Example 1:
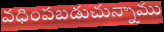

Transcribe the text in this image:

వధింపబడుచున్నాము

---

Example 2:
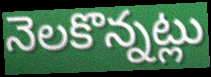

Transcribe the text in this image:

నెలకొన్నట్లు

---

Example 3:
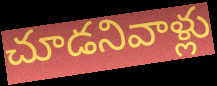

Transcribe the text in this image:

చూడనివాళ్లు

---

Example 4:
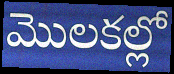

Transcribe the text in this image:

మొలకల్లో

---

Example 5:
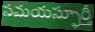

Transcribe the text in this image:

సమయస్ఫూర్తీ